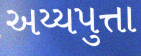
અય્યપુત્તા